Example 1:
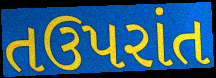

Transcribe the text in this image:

તઉપરાંત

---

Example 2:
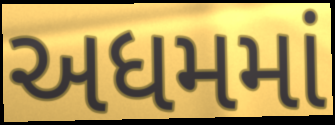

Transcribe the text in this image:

અધમમાં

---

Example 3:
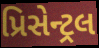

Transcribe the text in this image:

પ્રિસેન્ટ્રલ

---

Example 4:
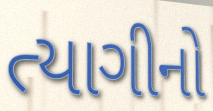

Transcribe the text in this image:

ત્યાગીનો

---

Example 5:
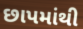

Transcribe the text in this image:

છાપમાંથી